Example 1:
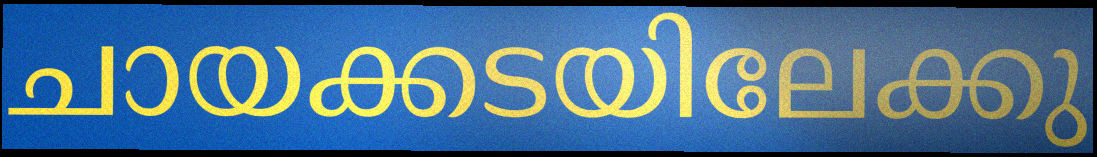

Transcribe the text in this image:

ചായക്കടയിലേക്കു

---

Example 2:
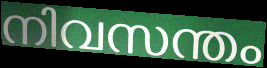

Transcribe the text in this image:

നിവസന്തം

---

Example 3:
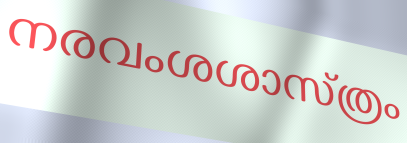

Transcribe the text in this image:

നരവംശശാസ്‌ത്രം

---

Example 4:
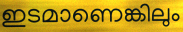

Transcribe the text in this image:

ഇടമാണെങ്കിലും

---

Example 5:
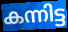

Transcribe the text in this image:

കന്നിട്ട